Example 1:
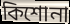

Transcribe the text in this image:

কিশোনা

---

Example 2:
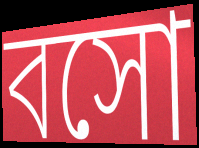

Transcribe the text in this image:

বসো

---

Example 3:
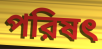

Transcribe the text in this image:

পরিষৎ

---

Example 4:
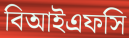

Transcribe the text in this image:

বিআইএফসি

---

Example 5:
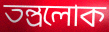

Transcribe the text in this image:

তন্ত্রলোক